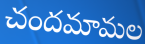
చందమామల